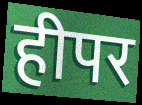
हीपर